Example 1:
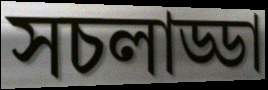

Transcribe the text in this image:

সচলাড্ডা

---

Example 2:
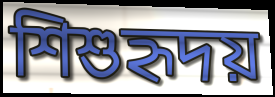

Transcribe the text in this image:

শিশুহৃদয়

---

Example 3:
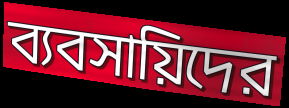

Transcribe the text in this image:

ব্যবসায়িদের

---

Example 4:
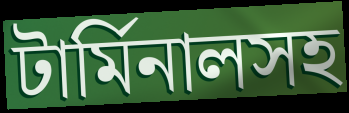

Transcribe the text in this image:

টার্মিনালসহ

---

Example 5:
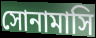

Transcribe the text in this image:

সোনামাসি